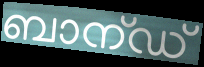
ബാന്ഡ്